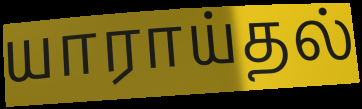
யாராய்தல்